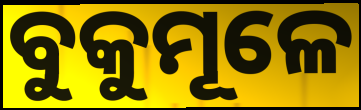
ବୁକୁମୂଳେ